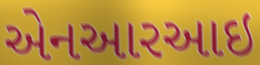
એનઆરઆઇ